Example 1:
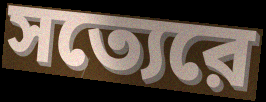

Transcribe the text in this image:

সত্যেরে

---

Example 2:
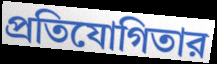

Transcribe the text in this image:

প্রতিযোগিতার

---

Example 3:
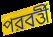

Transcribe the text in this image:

পরবর্ত্তী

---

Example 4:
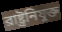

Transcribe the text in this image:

রাষ্ট্রনিযুক্ত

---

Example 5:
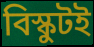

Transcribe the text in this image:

বিস্কুটই